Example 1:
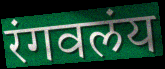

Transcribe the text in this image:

रंगवलंय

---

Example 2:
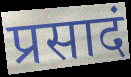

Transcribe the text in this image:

प्रसादं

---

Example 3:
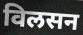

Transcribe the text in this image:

विलसन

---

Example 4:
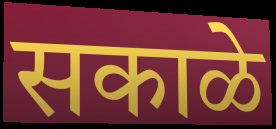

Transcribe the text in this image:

सकाळे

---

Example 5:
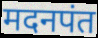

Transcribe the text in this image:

मदनपंत